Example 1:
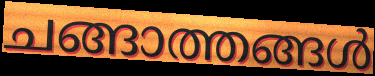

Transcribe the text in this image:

ചങ്ങാത്തങ്ങൾ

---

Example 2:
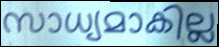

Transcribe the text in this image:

സാധ്യമാകില്ല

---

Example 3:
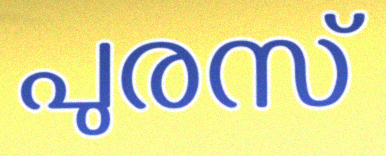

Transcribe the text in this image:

പുരസ്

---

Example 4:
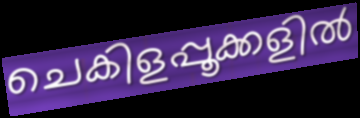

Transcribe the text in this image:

ചെകിളപ്പൂക്കളിൽ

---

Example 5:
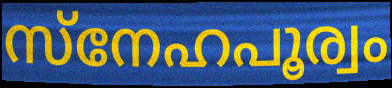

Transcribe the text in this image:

സ്നേഹപൂര്വം